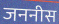
जननीस